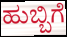
ಹುಬ್ಬಿಗೆ